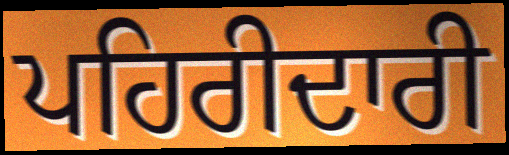
ਪਹਿਰੀਦਾਰੀ